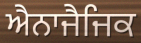
ਐਨਾਜੈਜਿਕ